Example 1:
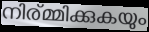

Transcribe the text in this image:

നിര്മ്മിക്കുകയും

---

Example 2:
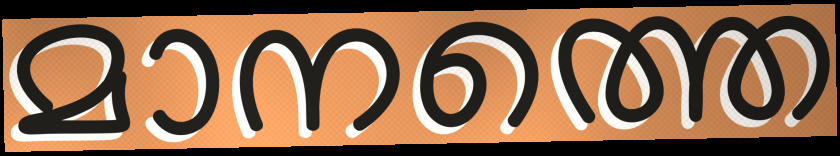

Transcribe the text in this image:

മാനത്തെ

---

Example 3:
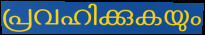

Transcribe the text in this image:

പ്രവഹിക്കുകയും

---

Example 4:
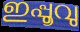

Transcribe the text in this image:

ഇപ്പൂവു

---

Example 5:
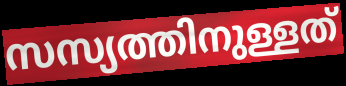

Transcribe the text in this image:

സസ്യത്തിനുള്ളത്